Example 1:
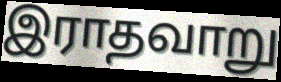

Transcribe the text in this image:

இராதவாறு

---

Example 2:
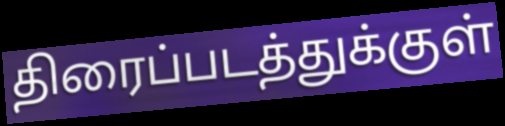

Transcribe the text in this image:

திரைப்படத்துக்குள்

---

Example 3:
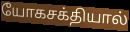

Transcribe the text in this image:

யோகசக்தியால்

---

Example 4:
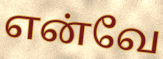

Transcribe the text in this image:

என்வே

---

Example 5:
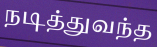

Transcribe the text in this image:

நடித்துவந்த